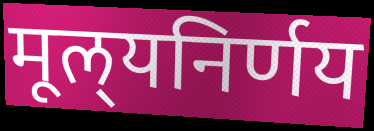
मूल्यनिर्णय